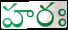
హరః